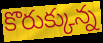
కొరుక్కున్న